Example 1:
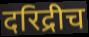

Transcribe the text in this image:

दरिद्रीच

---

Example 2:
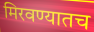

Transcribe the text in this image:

मिरवण्यातच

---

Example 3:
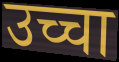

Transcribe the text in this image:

उच्चा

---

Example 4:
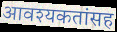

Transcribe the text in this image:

आवश्यकतांसह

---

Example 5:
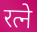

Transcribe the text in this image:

रत्ने